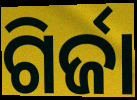
ଗିର୍ଜା